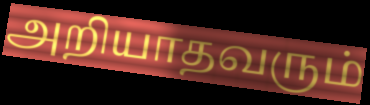
அறியாதவரும்